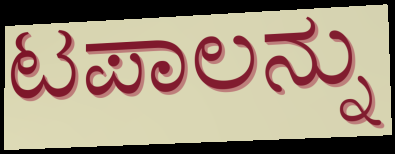
ಟಪಾಲನ್ನು